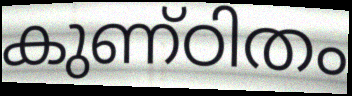
കുണ്ഠിതം